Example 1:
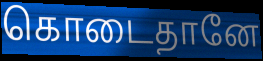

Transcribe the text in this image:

கொடைதானே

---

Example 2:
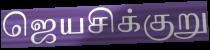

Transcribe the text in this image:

ஜெயசிக்குறு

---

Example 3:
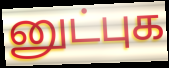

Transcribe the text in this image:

னுட்புக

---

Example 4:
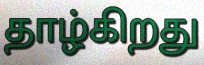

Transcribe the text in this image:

தாழ்கிறது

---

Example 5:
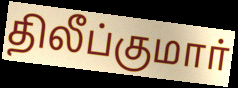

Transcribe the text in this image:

திலீப்குமார்